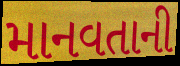
માનવતાની